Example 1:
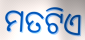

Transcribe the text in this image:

ମତଟିଏ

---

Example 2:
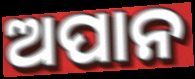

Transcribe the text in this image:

ଅପାନ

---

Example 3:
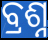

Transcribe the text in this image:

ବ୍ରଶ୍ନ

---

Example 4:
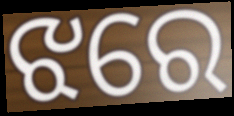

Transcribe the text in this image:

ଝରେ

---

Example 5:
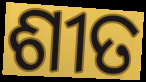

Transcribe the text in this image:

ଶୀତ